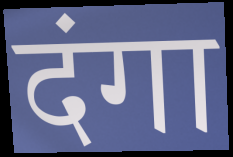
दंगा